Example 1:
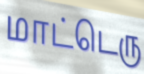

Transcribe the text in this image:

மாட்டெரு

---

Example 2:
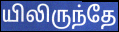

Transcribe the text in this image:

யிலிருந்தே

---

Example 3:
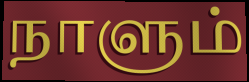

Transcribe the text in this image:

நாளும்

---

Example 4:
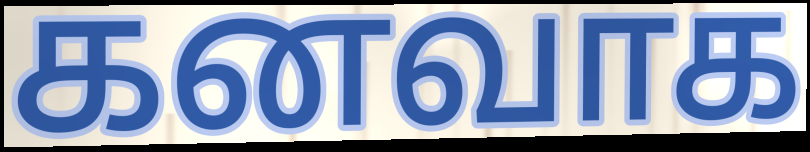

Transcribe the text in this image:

கனவாக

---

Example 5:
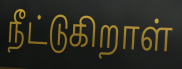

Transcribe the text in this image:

நீட்டுகிறாள்